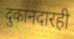
दुकानदारही